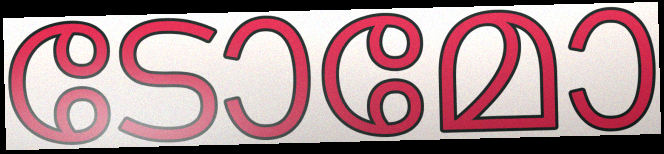
ടോമോ